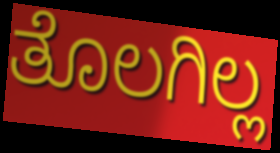
ತೊಲಗಿಲ್ಲ